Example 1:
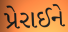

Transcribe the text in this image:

પ્રેરાઈને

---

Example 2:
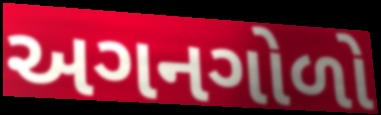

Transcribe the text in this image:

અગનગોળો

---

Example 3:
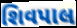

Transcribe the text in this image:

શિવપાલ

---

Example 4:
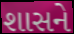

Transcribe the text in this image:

શાસને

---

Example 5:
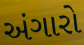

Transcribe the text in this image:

અંગારો